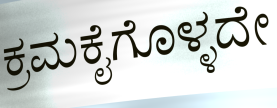
ಕ್ರಮಕೈಗೊಳ್ಳದೇ